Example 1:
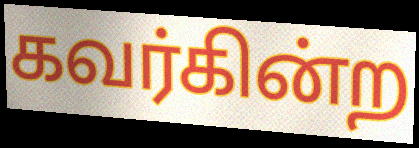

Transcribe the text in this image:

கவர்கின்ற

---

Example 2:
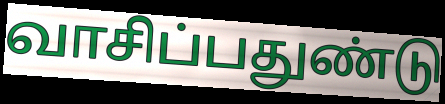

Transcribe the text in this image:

வாசிப்பதுண்டு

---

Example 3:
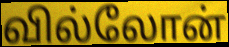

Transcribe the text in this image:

வில்லோன்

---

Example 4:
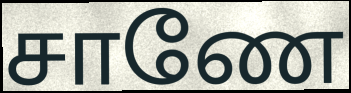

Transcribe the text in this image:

சாணே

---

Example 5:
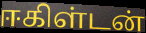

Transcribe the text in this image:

ஈகிள்டன்